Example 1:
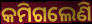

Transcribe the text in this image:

କମିଗଲେଣି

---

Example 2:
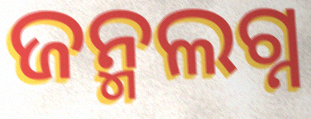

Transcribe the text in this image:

ଜନ୍ମଲଗ୍ନ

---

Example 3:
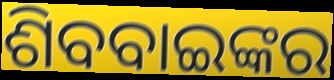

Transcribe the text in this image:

ଶିବବାଇଙ୍କର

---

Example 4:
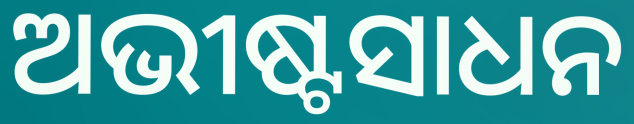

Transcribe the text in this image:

ଅଭୀଷ୍ଟସାଧନ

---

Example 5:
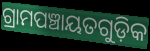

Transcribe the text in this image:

ଗ୍ରାମପଞ୍ଚାୟତଗୁଡ଼ିକ